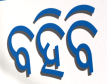
ବହିବି